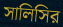
সালিসির